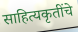
साहित्यकृतींचे